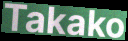
Takako